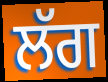
ਲੱਗ